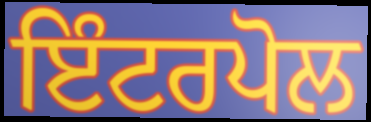
ਇੰਟਰਪੋਲ